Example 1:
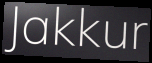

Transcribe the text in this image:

Jakkur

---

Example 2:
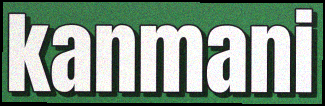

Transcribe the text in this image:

kanmani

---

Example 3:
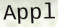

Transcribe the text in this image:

Appl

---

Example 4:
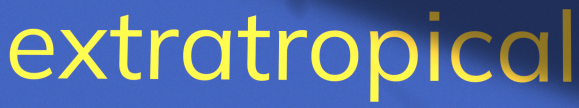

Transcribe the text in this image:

extratropical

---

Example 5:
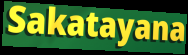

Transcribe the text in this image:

Sakatayana